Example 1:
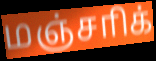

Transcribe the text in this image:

மஞ்சரிக்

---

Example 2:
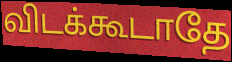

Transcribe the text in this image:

விடக்கூடாதே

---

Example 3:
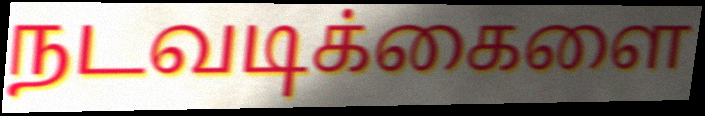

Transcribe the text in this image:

நடவடிக்கைளை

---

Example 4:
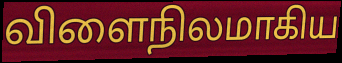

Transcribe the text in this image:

விளைநிலமாகிய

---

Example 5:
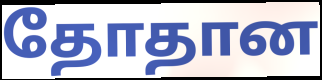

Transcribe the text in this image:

தோதான